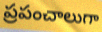
ప్రపంచాలుగా